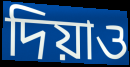
দিয়াও